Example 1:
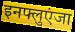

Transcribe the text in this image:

इनफ्लुएंजा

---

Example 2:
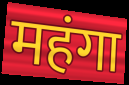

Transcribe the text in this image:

महंगा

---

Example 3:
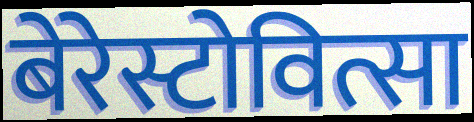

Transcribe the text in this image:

बेरेस्टोवित्सा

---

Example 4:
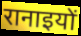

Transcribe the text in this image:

रानाइयों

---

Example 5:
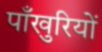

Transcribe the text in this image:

पाँखुरियों